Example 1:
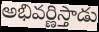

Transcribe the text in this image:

అభివర్ణిస్తాడు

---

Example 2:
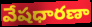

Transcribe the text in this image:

వేషధారణా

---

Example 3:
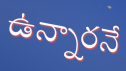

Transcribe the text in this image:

ఉన్నారనే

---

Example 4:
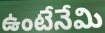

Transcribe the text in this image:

ఉంటేనేమి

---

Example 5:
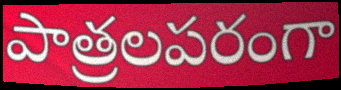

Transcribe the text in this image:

పాత్రలపరంగా